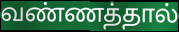
வண்ணத்தால்